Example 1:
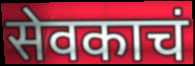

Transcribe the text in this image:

सेवकाचं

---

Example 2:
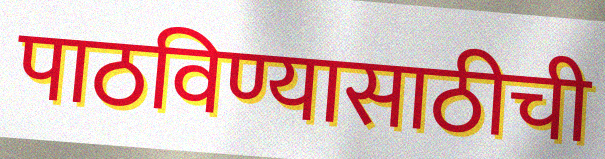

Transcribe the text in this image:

पाठविण्यासाठीची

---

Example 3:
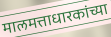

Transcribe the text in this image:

मालमत्ताधारकांच्या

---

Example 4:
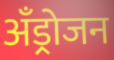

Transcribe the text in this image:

अँड्रोजन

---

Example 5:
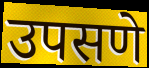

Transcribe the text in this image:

उपसणे